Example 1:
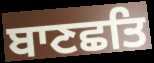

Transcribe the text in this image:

ਬਾਣਛਤਿ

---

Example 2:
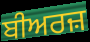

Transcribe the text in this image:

ਬੀਅਰਜ਼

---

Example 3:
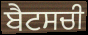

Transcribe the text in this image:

ਬੈਟਸਚੀ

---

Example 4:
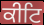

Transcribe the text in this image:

ਕੀਟਿ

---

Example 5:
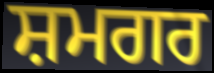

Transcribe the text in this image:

ਸ਼ਮਗਰ